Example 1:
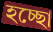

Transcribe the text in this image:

হচ্ছো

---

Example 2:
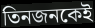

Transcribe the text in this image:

তিনজনকেই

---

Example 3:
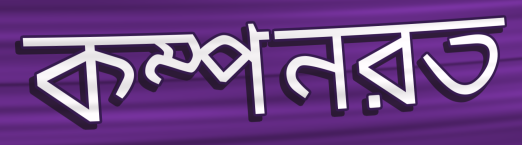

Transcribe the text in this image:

কম্পনরত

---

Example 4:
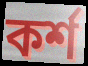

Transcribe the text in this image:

কর্শ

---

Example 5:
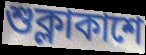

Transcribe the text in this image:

শুক্লাকাশে